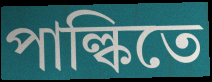
পাল্কিতে